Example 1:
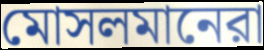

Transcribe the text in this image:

মোসলমানেরা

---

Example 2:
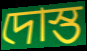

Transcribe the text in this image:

দোস্ত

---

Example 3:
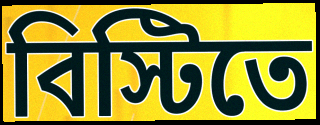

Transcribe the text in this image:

বিস্টিতে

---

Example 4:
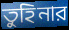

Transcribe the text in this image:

তুহিনার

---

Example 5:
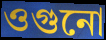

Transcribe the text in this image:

ওগুনো